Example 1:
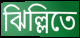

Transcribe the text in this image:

ঝিল্লিতে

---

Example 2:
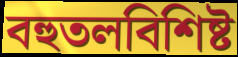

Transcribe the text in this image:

বহুতলবিশিষ্ট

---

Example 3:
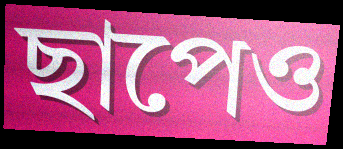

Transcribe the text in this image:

ছাপেও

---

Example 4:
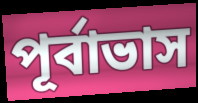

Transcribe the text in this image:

পূর্বাভাস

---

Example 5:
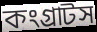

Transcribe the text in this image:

কংগ্রাটস